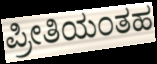
ಪ್ರೀತಿಯಂತಹ